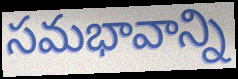
సమభావాన్ని